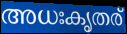
അധഃകൃതര്